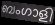
ബംഗാളി